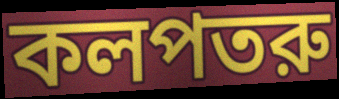
কলপতরু